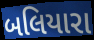
બલિયારા